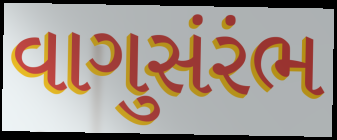
વાગુસંરંભ